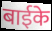
बाईके